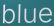
blue